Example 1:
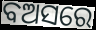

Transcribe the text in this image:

ବଅସରେ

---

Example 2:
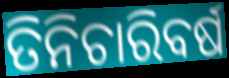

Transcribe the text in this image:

ତିନିଚାରିବର୍ଷ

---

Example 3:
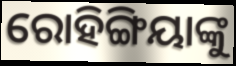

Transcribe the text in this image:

ରୋହିଙ୍ଗିୟାଙ୍କୁ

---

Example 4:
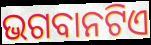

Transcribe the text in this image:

ଭଗବାନଟିଏ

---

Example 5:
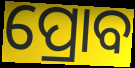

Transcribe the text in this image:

ପ୍ରୋବ